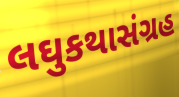
લઘુકથાસંગ્રહ